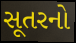
સૂતરનો